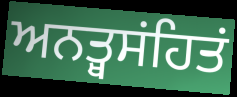
ਅਨਤ੍ਥਸਂਹਿਤਂ